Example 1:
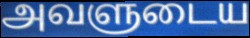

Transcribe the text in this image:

அவளுடைய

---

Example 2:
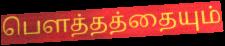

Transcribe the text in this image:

பெளத்தத்தையும்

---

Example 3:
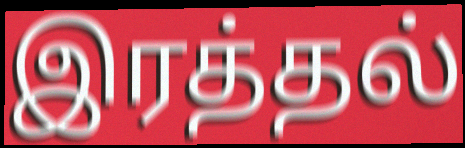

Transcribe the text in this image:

இரத்தல்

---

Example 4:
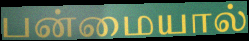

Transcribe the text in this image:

பன்மையால்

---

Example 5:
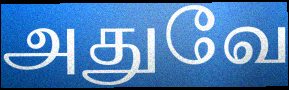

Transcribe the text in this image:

அதுவே